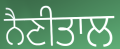
ਨੈਣੀਤਾਲ